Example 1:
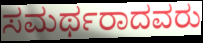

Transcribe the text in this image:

ಸಮರ್ಥರಾದವರು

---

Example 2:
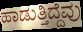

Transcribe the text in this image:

ಹಾಡುತ್ತಿದ್ದೆವು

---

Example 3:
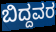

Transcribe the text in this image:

ಬಿದ್ದವರ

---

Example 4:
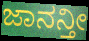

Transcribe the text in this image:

ಜಾನನ್ತೀ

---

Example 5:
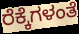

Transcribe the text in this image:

ರೆಕ್ಕೆಗಳಂತೆ